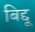
बिद्दू